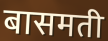
बासमती